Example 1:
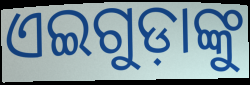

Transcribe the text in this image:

ଏଇଗୁଡ଼ାଙ୍କୁ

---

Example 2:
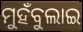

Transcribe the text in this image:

ମୁହଁବୁଲାଇ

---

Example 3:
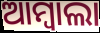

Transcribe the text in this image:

ଆମ୍ବାଲା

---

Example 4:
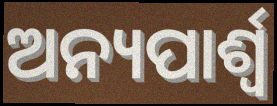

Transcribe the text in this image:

ଅନ୍ୟପାର୍ଶ୍ୱ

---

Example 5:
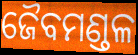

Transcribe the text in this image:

ଜୈବମଣ୍ଡଳ